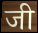
जी